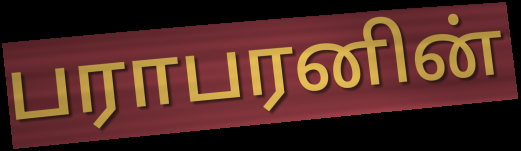
பராபரனின்